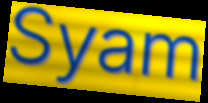
Syam